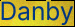
Danby